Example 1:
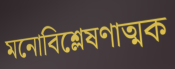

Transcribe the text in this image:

মনোবিশ্লেষণাত্মক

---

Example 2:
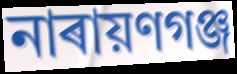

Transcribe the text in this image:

নাৰায়ণগঞ্জ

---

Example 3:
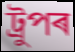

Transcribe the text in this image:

ট্ৰুপৰ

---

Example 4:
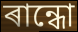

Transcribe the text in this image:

ৰান্ধো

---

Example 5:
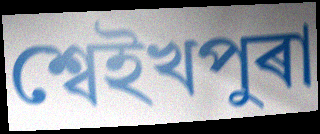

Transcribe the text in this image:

শ্বেইখপুৰা